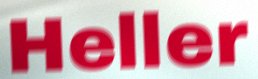
Heller